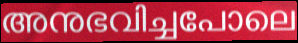
അനുഭവിച്ചപോലെ